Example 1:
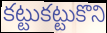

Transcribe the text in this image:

కట్టుకట్టుకొని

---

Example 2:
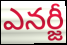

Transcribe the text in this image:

ఎనర్జీ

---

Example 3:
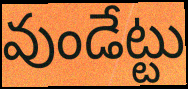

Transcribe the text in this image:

వుండేట్టు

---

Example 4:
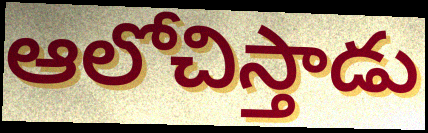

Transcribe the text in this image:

ఆలోచిస్తాడు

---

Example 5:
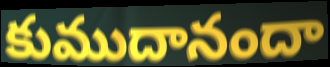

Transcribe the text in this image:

కుముదానందా